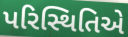
પરિસ્થિતિએ